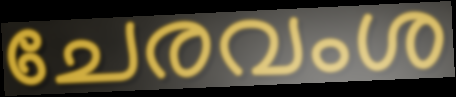
ചേരവംശ